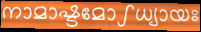
നാമാഷ്ടമോഽധ്യായഃ